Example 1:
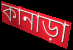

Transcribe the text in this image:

কানাড়া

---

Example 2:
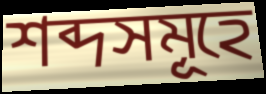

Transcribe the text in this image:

শব্দসমূহে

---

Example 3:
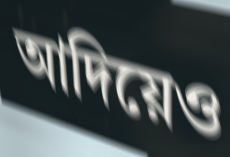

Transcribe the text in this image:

আদিয়েও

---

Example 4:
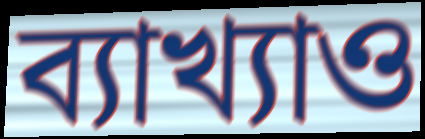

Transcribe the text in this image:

ব্যাখ্যাও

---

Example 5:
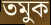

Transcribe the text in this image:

তমুক